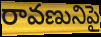
రావణునిపై